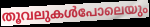
തൂവലുകൾപോലെയും